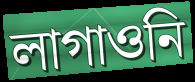
লাগাওনি